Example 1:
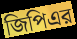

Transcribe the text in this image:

জিপিএর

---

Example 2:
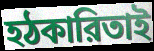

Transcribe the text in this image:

হঠকারিতাই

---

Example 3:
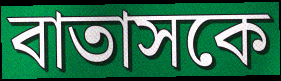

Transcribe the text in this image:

বাতাসকে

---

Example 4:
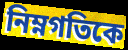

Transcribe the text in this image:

নিম্নগতিকে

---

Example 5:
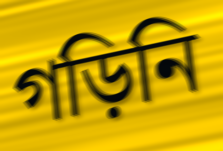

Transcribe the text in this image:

গড়িনি